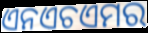
ଏନଏଚଏମର